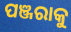
ପଞ୍ଜରାକୁ